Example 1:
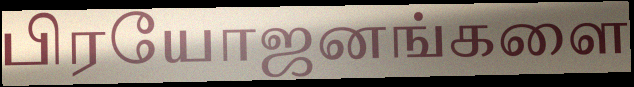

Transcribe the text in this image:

பிரயோஜனங்களை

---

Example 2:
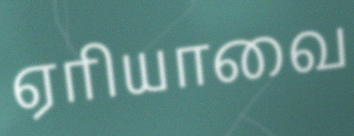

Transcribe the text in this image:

ஏரியாவை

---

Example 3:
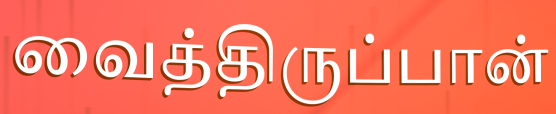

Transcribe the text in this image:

வைத்திருப்பான்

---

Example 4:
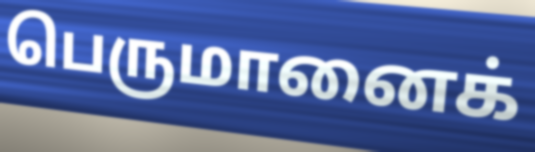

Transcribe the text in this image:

பெருமானைக்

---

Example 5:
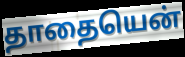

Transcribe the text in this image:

தாதையென்